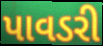
પાવડરી